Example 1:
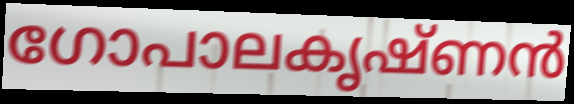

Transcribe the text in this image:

ഗോപാലകൃഷ്ണൻ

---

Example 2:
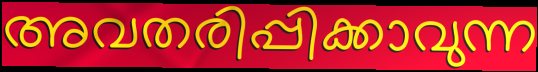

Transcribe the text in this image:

അവതരിപ്പിക്കാവുന്ന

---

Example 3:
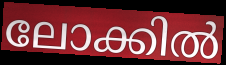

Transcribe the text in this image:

ലോക്കിൽ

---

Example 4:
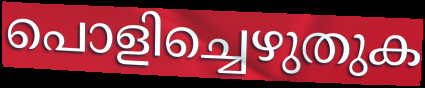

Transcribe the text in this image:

പൊളിച്ചെഴുതുക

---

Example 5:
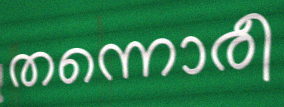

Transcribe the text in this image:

തന്നൊരീ